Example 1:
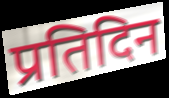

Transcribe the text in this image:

प्रतिदिन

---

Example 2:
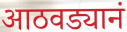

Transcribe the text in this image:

आठवड्यानं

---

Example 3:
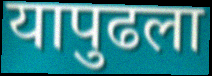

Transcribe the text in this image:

यापुढला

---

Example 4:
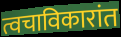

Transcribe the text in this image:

त्वचाविकारांत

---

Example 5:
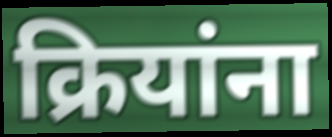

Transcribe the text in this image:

क्रियांना